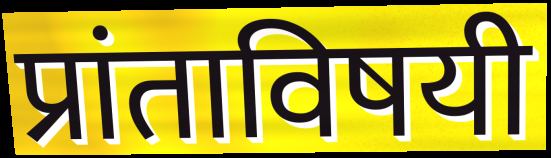
प्रांताविषयी